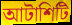
আটাশিটি